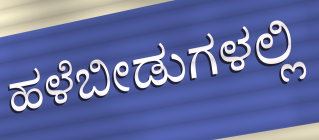
ಹಳೆಬೀಡುಗಳಲ್ಲಿ